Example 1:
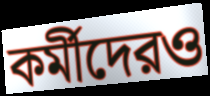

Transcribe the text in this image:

কর্মীদেরও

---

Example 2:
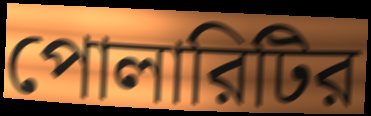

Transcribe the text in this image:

পোলারিটির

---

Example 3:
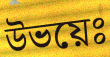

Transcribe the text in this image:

উভয়েঃ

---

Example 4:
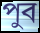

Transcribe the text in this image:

পুব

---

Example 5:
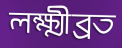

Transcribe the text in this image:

লক্ষ্মীব্রত